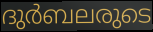
ദുർബലരുടെ